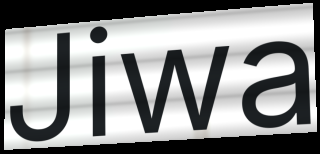
Jiwa